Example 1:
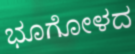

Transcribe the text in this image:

ಭೂಗೋಳದ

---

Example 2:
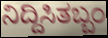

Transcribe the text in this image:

ನಿದ್ದಿಸಿತಬ್ಬಂ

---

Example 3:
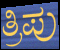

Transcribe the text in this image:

ತ್ರಿಪು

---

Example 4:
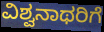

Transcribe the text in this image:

ವಿಶ್ವನಾಥರಿಗೆ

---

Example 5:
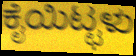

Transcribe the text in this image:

ಕೈಯಿಟ್ಟಳು